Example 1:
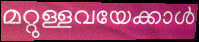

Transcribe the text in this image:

മറ്റുള്ളവയേക്കാൾ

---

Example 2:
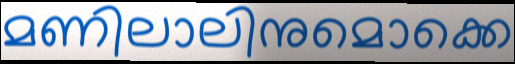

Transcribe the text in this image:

മണിലാലിനുമൊക്കെ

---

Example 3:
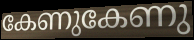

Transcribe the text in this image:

കേണുകേണു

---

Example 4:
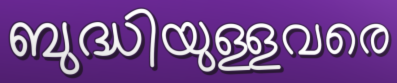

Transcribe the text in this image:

ബുദ്ധിയുള്ളവരെ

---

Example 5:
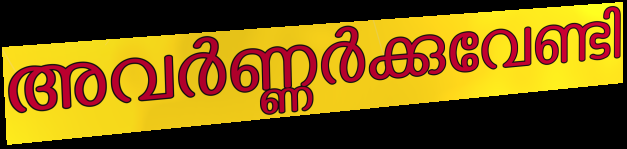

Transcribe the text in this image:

അവർണ്ണർക്കുവേണ്ടി